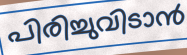
പിരിച്ചുവിടാൻ